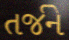
તર્જને